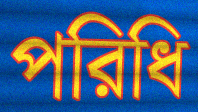
পরিধি